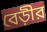
বেড়ীর